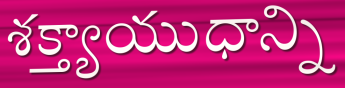
శక్త్యాయుధాన్ని